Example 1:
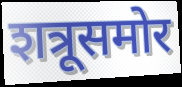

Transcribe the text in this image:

शत्रूसमोर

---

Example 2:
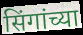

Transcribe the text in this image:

सिंगांच्या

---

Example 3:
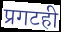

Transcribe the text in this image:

प्रगटही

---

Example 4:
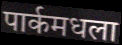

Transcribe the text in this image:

पार्कमधला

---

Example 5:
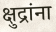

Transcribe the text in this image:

क्षुद्रांना